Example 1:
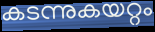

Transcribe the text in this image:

കടന്നുകയറ്റം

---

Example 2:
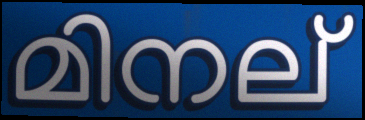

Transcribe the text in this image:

മിനല്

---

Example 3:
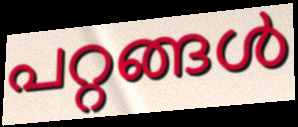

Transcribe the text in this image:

പറ്റങ്ങൾ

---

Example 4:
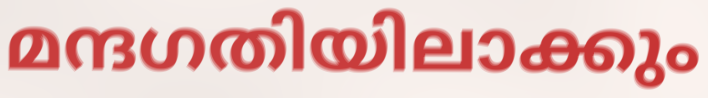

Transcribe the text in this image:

മന്ദഗതിയിലാക്കും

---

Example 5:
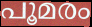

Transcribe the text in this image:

പൂമരം